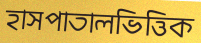
হাসপাতালভিত্তিক